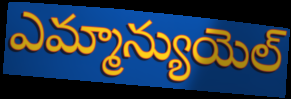
ఎమ్మాన్యుయెల్